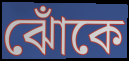
ঝোঁকে